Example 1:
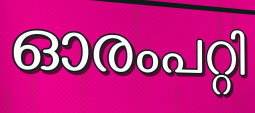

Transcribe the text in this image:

ഓരംപറ്റി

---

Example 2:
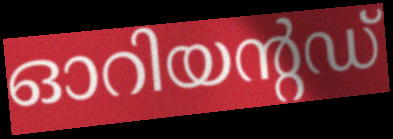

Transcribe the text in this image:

ഓറിയന്റഡ്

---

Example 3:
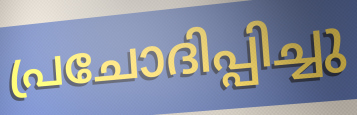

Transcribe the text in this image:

പ്രചോദിപ്പിച്ചു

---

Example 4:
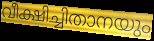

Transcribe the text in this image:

വീക്ഷിച്ചിതാനയും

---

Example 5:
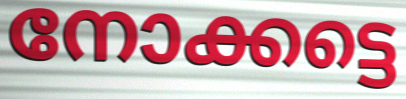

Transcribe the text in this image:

നോക്കട്ടെ